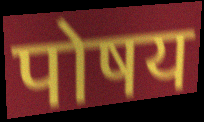
पोषय